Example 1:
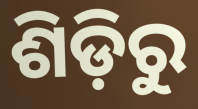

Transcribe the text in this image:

ଶିଡ଼ିରୁ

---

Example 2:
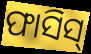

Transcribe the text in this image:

ଫାସିସ୍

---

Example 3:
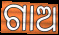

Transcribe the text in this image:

ଗାଅ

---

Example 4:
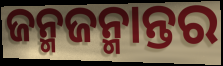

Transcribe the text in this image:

ଜନ୍ମଜନ୍ମାନ୍ତର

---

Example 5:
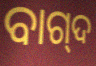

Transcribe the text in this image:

ବାଗ୍‌ଦ